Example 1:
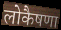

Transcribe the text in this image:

लोकैषणा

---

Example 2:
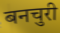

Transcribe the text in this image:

बनचुरी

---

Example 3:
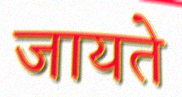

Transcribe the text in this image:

जायते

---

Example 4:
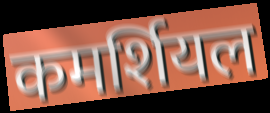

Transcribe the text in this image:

कमर्शियल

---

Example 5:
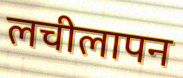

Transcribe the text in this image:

लचीलापन